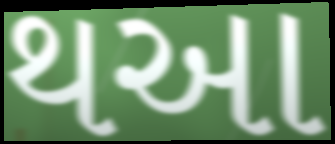
થઆ